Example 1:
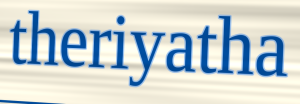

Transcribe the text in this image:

theriyatha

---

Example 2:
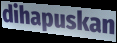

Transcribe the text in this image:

dihapuskan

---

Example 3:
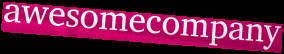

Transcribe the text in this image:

awesomecompany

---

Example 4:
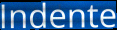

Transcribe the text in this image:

Indente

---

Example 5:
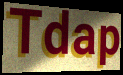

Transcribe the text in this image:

Tdap